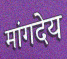
मांगदेय